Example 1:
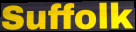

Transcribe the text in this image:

Suffolk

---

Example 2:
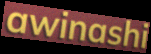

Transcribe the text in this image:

awinashi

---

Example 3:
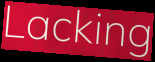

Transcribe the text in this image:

Lacking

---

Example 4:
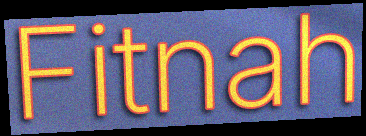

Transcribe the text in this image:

Fitnah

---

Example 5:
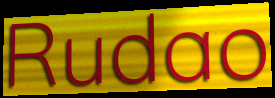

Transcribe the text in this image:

Rudao